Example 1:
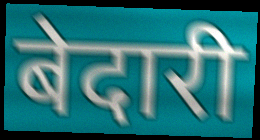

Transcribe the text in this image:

बेदारी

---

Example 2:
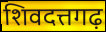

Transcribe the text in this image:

शिवदत्तगढ़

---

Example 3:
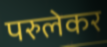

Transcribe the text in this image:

परुलेकर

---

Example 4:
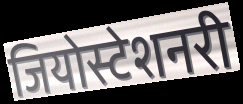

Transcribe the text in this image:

जियोस्टेशनरी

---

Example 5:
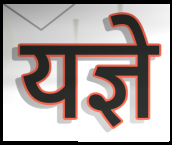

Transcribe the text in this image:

यज्ञे